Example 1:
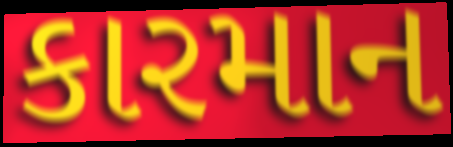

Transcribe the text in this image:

કારમાન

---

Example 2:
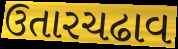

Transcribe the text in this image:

ઉતારચઢાવ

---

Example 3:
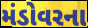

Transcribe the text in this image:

મંડોવરના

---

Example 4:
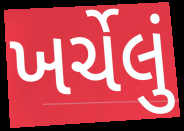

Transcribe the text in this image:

ખર્ચેલું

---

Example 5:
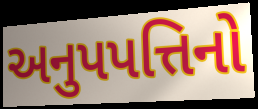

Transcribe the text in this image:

અનુપપત્તિનો